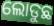
ଲୋଡୁଛ